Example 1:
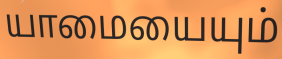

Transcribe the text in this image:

யாமையையும்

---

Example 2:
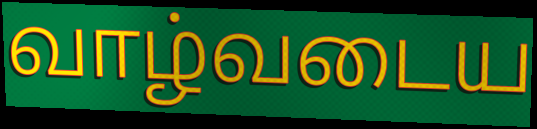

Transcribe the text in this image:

வாழ்வடைய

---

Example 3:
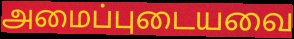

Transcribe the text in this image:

அமைப்புடையவை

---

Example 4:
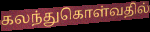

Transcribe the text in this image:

கலந்துகொள்வதில்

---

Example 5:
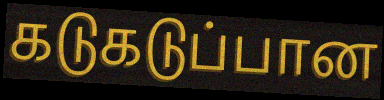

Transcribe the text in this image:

கடுகடுப்பான